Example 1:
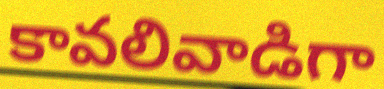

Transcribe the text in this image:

కావలివాడిగా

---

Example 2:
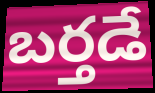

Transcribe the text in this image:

బర్తడే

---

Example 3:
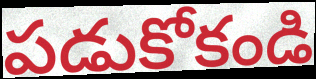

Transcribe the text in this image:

పడుకోకండి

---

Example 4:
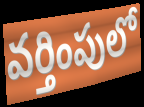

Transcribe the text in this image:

వర్తింపులో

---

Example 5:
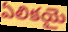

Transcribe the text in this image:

ఏలికయై